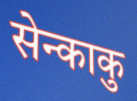
सेन्काकु